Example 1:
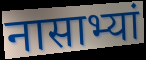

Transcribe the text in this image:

नासाभ्यां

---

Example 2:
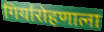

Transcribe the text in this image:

गिर्यारोहणाला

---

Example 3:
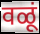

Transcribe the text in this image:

वळूं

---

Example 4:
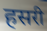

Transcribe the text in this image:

हसरी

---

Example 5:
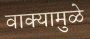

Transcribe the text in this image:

वाक्यामुळे